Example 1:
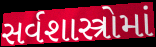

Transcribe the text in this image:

સર્વશાસ્ત્રોમાં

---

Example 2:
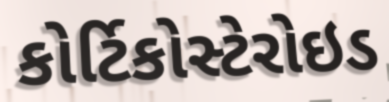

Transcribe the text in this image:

કોર્ટિકોસ્ટેરોઇડ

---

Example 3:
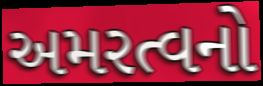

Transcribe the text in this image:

અમરત્વનો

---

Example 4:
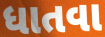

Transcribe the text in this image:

ધાતવા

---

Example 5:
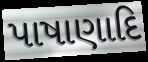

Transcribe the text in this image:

પાષાણાદિ